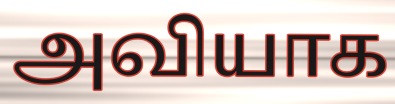
அவியாக